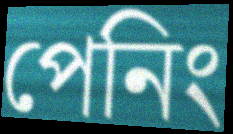
পেনিং